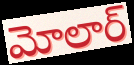
మోలార్